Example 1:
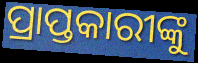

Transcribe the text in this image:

ପ୍ରାପ୍ତକାରୀଙ୍କୁ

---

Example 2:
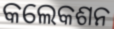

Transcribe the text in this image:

କଲେକଶନ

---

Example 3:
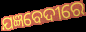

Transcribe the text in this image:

ଯଜ୍ଞବେଦୀରେ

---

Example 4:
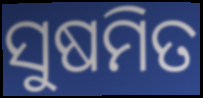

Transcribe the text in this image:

ସୁଷମିତ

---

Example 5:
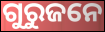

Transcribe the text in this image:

ଗୁରୁଜନେ